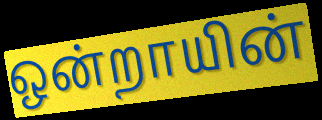
ஒன்றாயின்